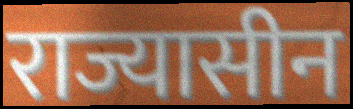
राज्यासीन